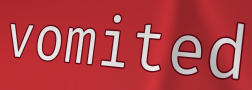
vomited